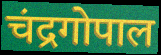
चंद्रगोपाल